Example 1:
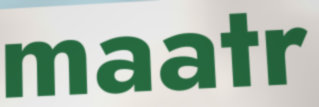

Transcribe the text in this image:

maatr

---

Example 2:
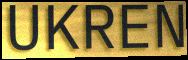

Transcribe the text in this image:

UKREN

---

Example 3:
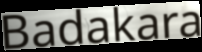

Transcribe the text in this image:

Badakara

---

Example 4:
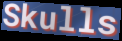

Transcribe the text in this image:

Skulls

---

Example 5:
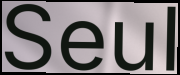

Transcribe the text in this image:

Seul